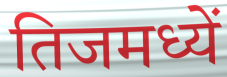
तिजमध्यें